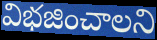
విభజించాలని